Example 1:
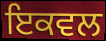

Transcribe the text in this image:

ਇਕਵਲ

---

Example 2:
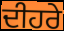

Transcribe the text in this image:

ਦੀਹਰੇ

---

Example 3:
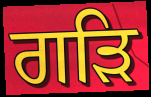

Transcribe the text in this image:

ਗੜਿ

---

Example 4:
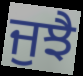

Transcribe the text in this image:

ਜੁਝੈ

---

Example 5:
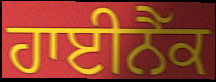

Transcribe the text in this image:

ਹਾਈਨੈੱਕ